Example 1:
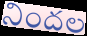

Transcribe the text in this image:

నిందల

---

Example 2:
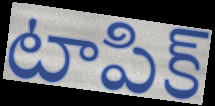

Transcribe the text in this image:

టాపిక్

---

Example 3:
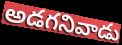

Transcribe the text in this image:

అడగనివాడు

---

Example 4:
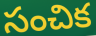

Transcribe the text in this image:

సంచిక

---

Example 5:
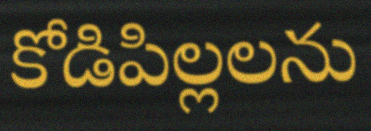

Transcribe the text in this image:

కోడిపిల్లలను